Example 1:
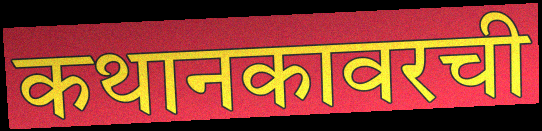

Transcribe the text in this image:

कथानकावरची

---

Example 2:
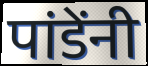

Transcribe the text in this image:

पांडेंनी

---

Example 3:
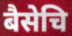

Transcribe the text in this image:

बैसेचि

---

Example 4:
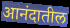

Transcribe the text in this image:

आनंदातील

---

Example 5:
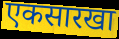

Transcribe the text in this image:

एकसारखा